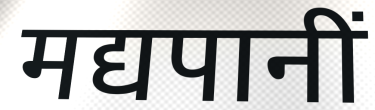
मद्यपानीं